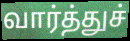
வார்த்துச்